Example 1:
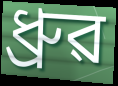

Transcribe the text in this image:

ধ্ৰুৱ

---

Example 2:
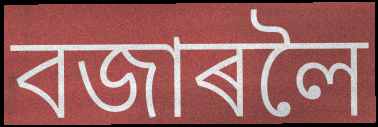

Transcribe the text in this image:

বজাৰলৈ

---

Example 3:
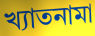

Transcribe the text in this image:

খ্যাতনামা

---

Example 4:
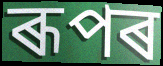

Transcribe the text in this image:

ৰূপৰ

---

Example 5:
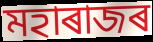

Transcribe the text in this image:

মহাৰাজৰ